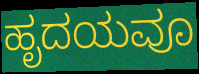
ಹೃದಯವೂ